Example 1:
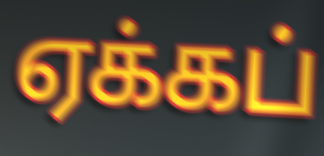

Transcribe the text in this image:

ஏக்கப்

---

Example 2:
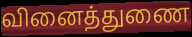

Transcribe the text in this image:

வினைத்துணை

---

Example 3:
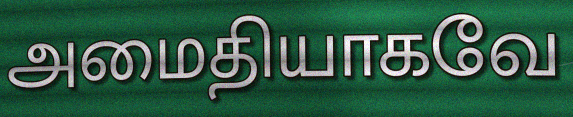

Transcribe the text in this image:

அமைதியாகவே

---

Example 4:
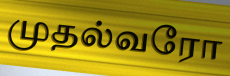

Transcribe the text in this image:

முதல்வரோ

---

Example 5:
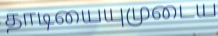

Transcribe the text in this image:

தாடியையுமுடைய